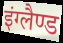
इंग्‍लैण्‍ड